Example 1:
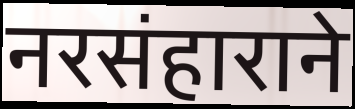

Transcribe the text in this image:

नरसंहाराने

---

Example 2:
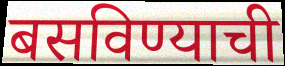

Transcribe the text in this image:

बसविण्याची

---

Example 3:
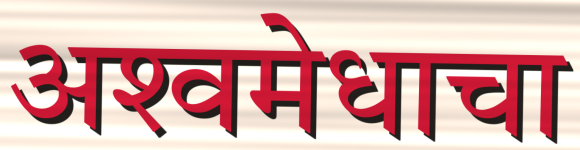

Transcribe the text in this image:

अश्‍वमेधाचा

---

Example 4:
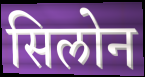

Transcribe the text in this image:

सिलोन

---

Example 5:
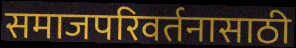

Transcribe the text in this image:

समाजपरिवर्तनासाठी